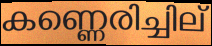
കണ്ണെരിച്ചില്